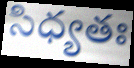
సిధ్యతః